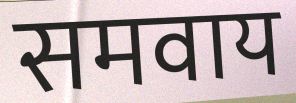
समवाय